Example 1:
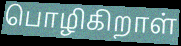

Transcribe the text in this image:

பொழிகிறாள்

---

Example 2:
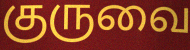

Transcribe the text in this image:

குருவை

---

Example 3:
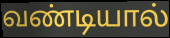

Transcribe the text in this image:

வண்டியால்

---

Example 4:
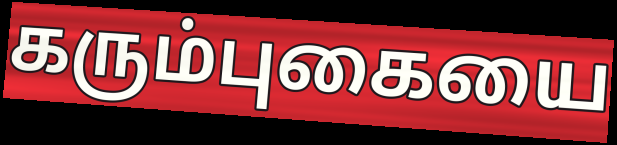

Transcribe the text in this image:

கரும்புகையை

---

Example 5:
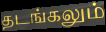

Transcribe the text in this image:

தடங்கலும்